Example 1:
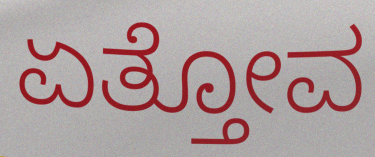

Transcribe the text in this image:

ಏತ್ತೋವ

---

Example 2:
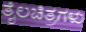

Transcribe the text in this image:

ತೈಲಚಿತ್ರಗಳು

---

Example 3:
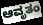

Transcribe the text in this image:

ಆವೃತಂ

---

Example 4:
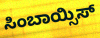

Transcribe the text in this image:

ಸಿಂಬಾಯ್ಸಿಸ್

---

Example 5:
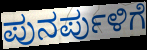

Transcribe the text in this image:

ಪುನರ್ಪುಳಿಗೆ